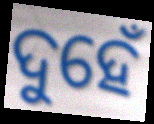
ଦୁହେଁ